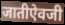
जातीऐवजी